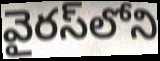
వైరస్‌లోని